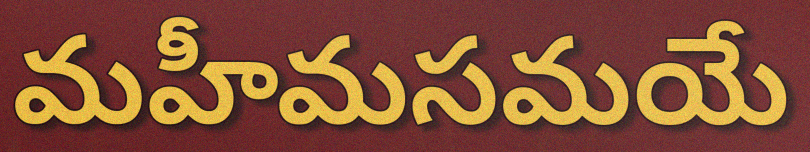
మహీమసమయే